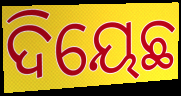
ଦିୟେଛ